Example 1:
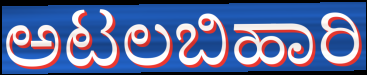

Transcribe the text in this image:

ಅಟಲಬಿಹಾರಿ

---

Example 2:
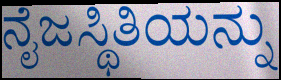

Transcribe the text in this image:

ನೈಜಸ್ಥಿತಿಯನ್ನು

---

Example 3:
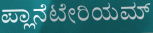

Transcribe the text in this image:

ಪ್ಲಾನೆಟೇರಿಯಮ್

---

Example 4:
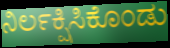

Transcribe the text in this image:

ನಿರ್ಲಕ್ಷಿಸಿಕೊಂಡು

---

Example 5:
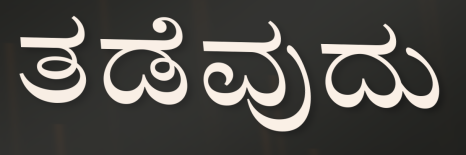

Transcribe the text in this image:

ತಡೆವುದು